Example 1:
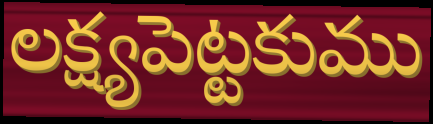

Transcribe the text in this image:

లక్ష్యపెట్టకుము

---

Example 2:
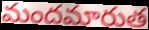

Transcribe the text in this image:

మందమారుత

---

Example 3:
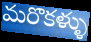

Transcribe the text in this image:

మరొకళ్ళు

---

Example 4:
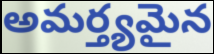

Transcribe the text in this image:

అమర్త్యమైన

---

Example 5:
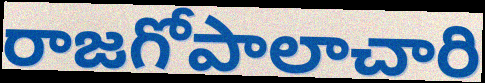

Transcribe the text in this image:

రాజగోపాలాచారి